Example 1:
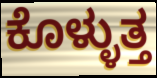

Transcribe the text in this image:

ಕೊಳ್ಳುತ್ತ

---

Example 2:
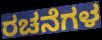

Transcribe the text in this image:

ರಚನೆಗಳ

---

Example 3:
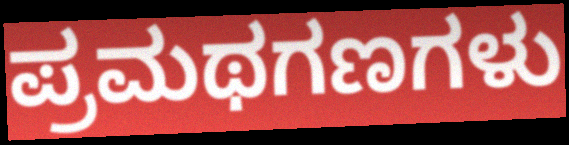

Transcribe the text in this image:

ಪ್ರಮಥಗಣಗಳು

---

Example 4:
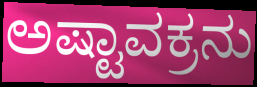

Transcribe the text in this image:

ಅಷ್ಟಾವಕ್ರನು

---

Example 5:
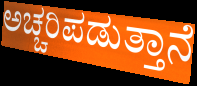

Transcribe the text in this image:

ಅಚ್ಚರಿಪಡುತ್ತಾನೆ